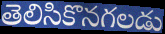
తెలిసికొనగలడు